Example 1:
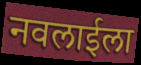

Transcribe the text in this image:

नवलाईला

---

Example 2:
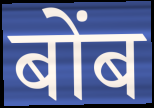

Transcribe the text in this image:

बोंब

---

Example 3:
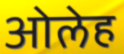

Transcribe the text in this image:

ओलेह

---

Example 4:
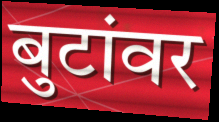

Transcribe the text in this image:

बुटांवर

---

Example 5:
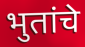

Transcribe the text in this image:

भुतांचे